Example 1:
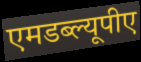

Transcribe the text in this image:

एमडब्ल्यूपीए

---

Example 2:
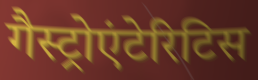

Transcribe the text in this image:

गैस्ट्रोएंटेरिटिस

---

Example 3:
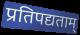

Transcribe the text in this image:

प्रतिपद्यताम्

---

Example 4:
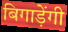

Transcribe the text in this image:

बिगाड़ेंगी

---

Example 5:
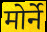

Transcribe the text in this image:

मोर्ने